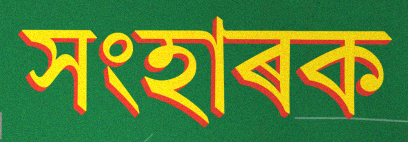
সংহাৰক